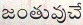
జంతువుచే